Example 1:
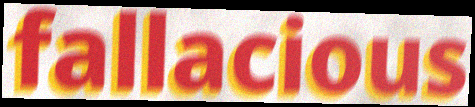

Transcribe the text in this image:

fallacious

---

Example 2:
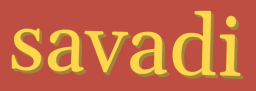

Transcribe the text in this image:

savadi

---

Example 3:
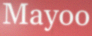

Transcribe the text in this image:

Mayoo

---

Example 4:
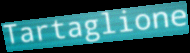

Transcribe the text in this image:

Tartaglione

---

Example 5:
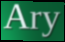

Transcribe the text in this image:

Ary